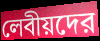
লেবীয়দের